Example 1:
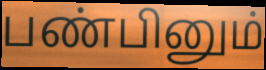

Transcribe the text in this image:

பண்பினும்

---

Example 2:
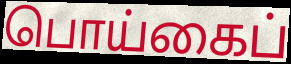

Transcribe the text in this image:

பொய்கைப்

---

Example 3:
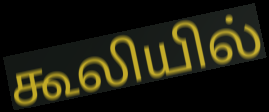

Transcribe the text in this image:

கூலியில்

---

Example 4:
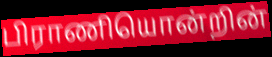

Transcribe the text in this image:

பிராணியொன்றின்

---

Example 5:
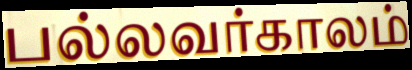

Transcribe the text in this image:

பல்லவர்காலம்